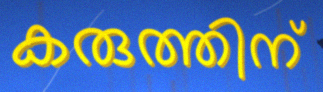
കരുത്തിന്